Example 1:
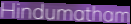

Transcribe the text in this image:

Hindumatham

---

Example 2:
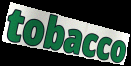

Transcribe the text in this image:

tobacco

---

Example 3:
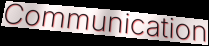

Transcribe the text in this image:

Communication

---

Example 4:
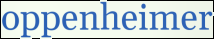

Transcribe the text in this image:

oppenheimer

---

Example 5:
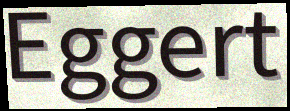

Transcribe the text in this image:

Eggert